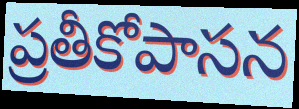
ప్రతీకోపాసన